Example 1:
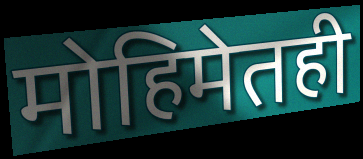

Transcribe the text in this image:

मोहिमेतही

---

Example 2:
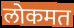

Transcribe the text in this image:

लोकमत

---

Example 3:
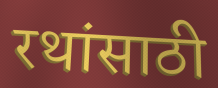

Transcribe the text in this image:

रथांसाठी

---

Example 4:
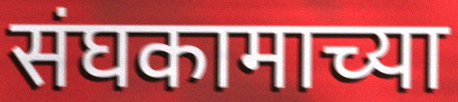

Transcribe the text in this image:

संघकामाच्या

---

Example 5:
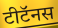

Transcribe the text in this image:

टीटॅनस